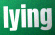
lying